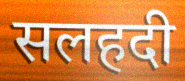
सलहदी